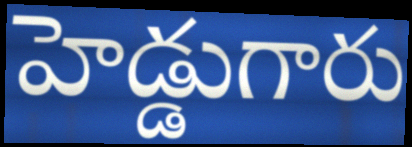
హెడ్డుగారు